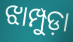
ଝାମ୍ପୁଡ଼ା